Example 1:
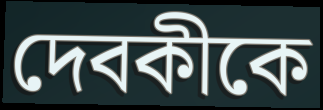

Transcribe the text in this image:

দেবকীকে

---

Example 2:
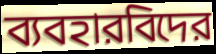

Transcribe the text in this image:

ব্যবহারবিদের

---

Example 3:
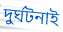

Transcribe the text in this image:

দুর্ঘটনাই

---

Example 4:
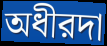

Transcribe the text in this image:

অধীরদা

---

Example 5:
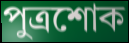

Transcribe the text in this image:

পুত্রশোক